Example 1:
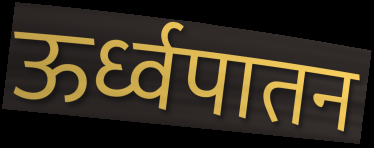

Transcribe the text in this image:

ऊर्ध्वपातन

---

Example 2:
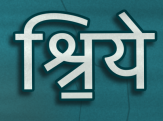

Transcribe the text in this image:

श्रि॒ये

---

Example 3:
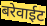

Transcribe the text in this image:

बरेवाईट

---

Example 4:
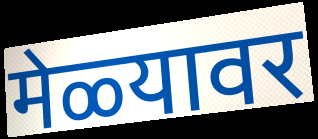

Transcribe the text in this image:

मेळ्यावर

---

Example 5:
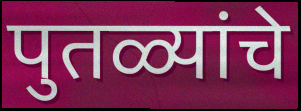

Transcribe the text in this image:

पुतळ्यांचे